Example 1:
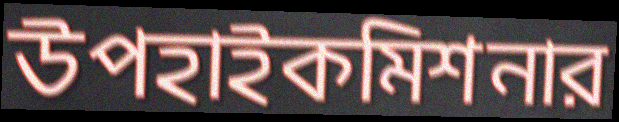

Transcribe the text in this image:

উপহাইকমিশনার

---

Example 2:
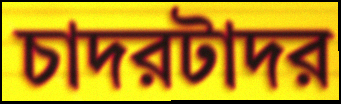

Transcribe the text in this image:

চাদরটাদর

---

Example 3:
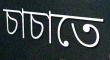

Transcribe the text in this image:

চাচাতে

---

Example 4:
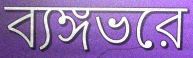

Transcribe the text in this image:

ব্যঙ্গভরে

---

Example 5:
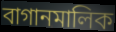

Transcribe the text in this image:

বাগানমালিক